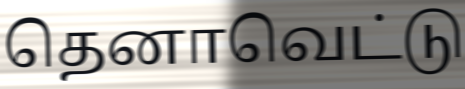
தெனாவெட்டு